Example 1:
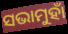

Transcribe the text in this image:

ସଭାମୁହାଁ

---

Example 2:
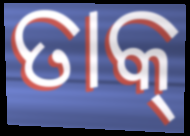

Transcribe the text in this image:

ତାକ୍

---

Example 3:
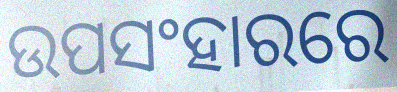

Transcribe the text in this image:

ଉପସଂହାରରେ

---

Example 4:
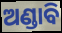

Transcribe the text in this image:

ଅଣ୍ଡାବି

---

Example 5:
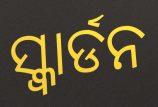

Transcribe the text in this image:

ସ୍କ୍ବାର୍ଡନ